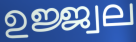
ഉജ്ജ്വല